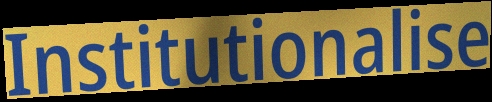
Institutionalise